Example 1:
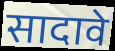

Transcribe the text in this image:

सादावे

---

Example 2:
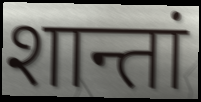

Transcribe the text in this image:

शान्तां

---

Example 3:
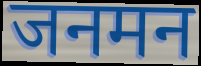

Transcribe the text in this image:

जनमन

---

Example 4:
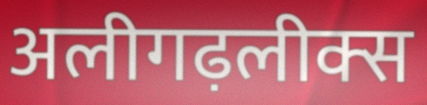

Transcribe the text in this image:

अलीगढ़लीक्स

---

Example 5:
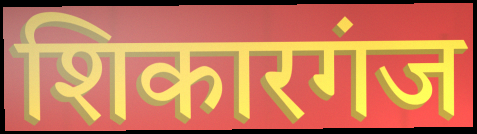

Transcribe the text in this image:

शिकारगंज